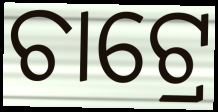
ଚାଟ୍ରେ